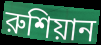
রুশিয়ান